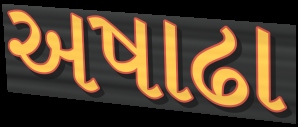
અષાઢા